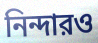
নিন্দারও